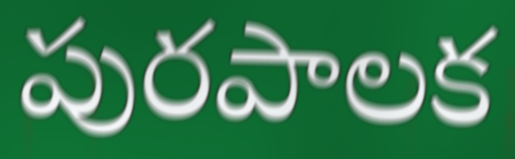
పురపాలక